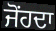
ਜੋਂਹਦਾ